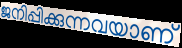
ജനിപ്പിക്കുന്നവയാണ്